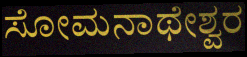
ಸೋಮನಾಥೇಶ್ವರ